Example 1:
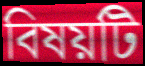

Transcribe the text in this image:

বিষয়টি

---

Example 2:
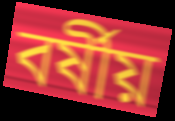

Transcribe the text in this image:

বৰ্ষীয়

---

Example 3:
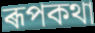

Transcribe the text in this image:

ৰূপকথা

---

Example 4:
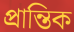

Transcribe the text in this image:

প্ৰান্তিক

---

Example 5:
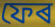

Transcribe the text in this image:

ফেৰ